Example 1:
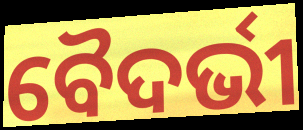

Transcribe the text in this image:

ବୈଦର୍ଭୀ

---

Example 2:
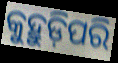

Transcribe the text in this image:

କୁହୁଡ଼ିପରି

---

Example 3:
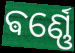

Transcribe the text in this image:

ଵର୍ଣ୍ଣେ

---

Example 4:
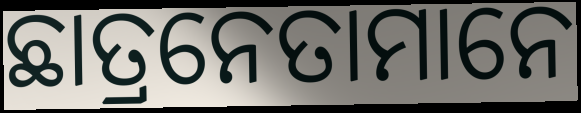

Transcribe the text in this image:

ଛାତ୍ରନେତାମାନେ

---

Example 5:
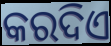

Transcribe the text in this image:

କରଦିଏ